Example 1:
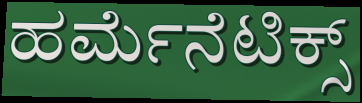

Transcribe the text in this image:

ಹರ್ಮೆನೆಟಿಕ್ಸ್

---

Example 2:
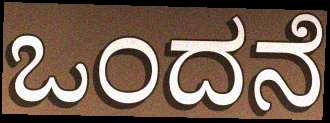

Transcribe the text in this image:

ಒಂದನೆ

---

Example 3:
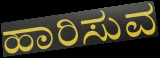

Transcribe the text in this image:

ಹಾರಿಸುವ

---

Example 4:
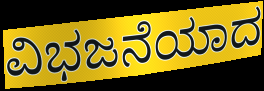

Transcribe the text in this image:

ವಿಭಜನೆಯಾದ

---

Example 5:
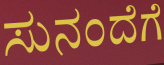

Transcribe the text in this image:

ಸುನಂದೆಗೆ